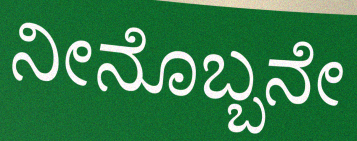
ನೀನೊಬ್ಬನೇ